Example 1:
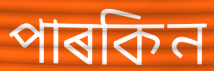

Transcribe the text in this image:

পাৰকিন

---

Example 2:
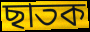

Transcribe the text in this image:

ছাতক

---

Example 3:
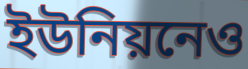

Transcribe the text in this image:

ইউনিয়নেও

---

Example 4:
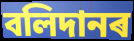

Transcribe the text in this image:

বলিদানৰ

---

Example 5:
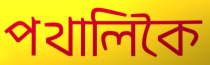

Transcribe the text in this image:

পথালিকৈ